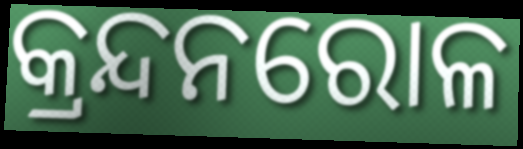
କ୍ରନ୍ଦନରୋଳ